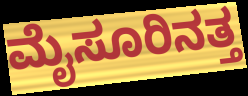
ಮೈಸೂರಿನತ್ತ